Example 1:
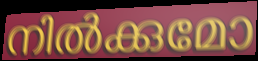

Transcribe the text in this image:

നിൽക്കുമോ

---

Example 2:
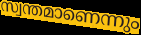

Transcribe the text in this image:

സ്വന്തമാണെന്നും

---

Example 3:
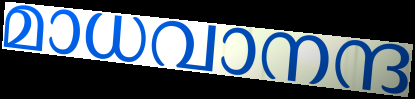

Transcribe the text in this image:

മാധവാനന്ദ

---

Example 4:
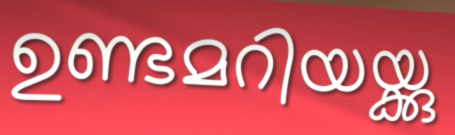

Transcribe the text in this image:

ഉണ്ടമറിയയ്ക്കു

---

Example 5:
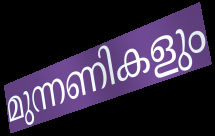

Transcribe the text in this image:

മുന്നണികളും